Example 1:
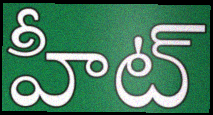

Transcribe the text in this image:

హీట్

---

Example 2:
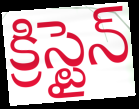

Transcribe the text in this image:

క్రిస్టైన్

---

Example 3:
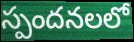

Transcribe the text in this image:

స్పందనలలో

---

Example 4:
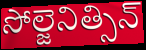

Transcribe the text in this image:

సోల్జెనిత్సిన్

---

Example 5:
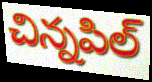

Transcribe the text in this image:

చిన్నపిల్